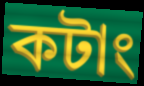
কটাং